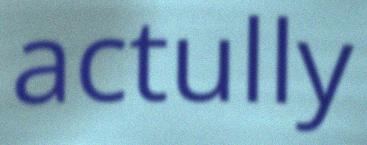
actully